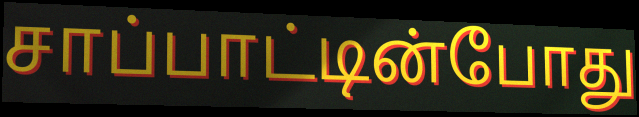
சாப்பாட்டின்போது